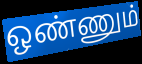
ஒண்ணும்